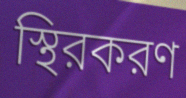
স্থিরকরণ